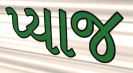
પ્યાજ